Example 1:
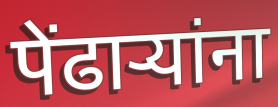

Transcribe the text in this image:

पेंढाऱ्यांना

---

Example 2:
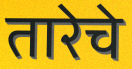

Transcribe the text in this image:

तारेचे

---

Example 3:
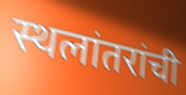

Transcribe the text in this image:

स्थलांतरांची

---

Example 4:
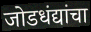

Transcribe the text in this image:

जोडधंद्यांचा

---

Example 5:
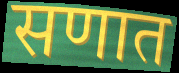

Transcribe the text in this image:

सणात